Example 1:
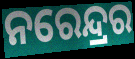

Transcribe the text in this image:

ନରେନ୍ଦ୍ରର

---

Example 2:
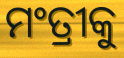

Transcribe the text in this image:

ମଂତ୍ରୀକୁ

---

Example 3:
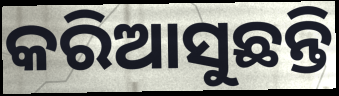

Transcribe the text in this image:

କରିଆସୁଛନ୍ତି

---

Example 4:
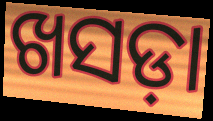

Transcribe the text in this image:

ଖସଡ଼ା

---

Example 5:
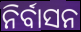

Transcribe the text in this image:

ନିର୍ବାସନ